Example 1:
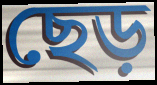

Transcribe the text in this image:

ছেড়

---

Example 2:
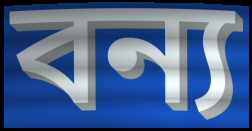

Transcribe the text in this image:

বন্য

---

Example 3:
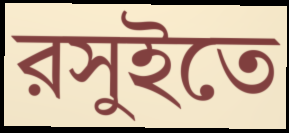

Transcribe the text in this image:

রসুইতে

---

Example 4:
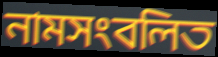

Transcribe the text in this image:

নামসংবলিত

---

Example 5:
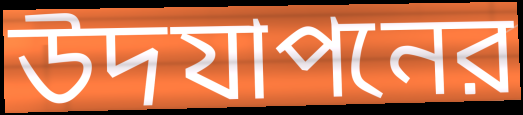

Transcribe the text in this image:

উদযাপনের